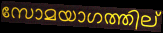
സോമയാഗത്തില്